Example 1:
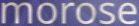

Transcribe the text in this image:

morose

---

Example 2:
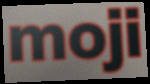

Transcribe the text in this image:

moji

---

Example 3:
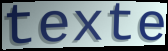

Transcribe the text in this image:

texte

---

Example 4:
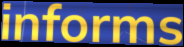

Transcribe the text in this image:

informs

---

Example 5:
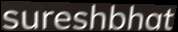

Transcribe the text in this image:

sureshbhat